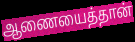
ஆணையைத்தான்